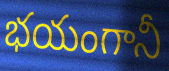
భయంగానీ